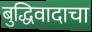
बुद्धिवादाचा